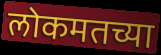
लोकमतच्या